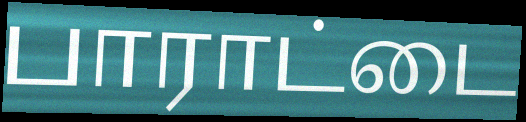
பாராட்டை